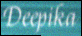
Deepika